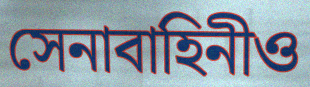
সেনাবাহিনীও